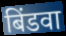
बिंडवा